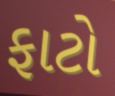
ફાટો